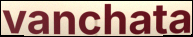
vanchata